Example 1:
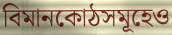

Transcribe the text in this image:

বিমানকোঠসমূহেও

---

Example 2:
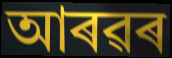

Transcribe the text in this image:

আৰৱৰ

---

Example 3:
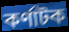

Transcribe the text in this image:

কৰ্ণাটক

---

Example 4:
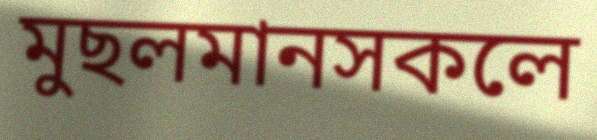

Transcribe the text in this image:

মুছলমানসকলে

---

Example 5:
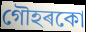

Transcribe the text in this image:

গৌহৰকো